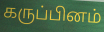
கருப்பினம்